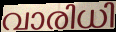
വാരിധി